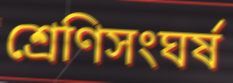
শ্রেণিসংঘর্ষ